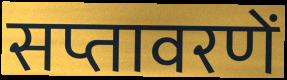
सप्तावरणें